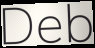
Deb